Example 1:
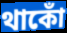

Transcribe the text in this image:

থাকোঁ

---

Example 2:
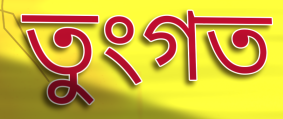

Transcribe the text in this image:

তুংগত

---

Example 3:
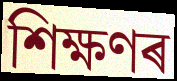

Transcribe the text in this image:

শিক্ষণৰ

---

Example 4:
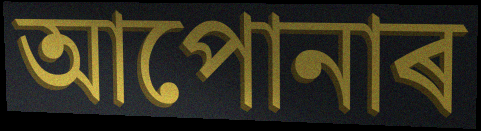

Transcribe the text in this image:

আপোনাৰ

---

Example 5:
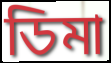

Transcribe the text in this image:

ডিমা